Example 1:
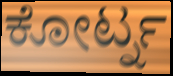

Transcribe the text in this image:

ಕೋರ್ಟ್ನ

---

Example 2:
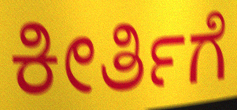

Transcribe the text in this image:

ಕೀರ್ತಿಗೆ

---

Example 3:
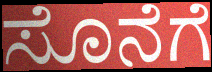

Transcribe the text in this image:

ಸೊನೆಗೆ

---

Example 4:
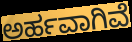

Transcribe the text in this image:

ಅರ್ಹವಾಗಿವೆ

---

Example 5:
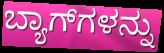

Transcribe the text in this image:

ಬ್ಯಾಗ್‍ಗಳನ್ನು